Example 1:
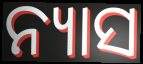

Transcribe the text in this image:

ନ୍ୟାସ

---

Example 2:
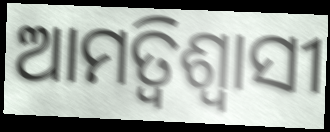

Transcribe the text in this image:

ଆମତ୍ବିଶ୍ୱାସୀ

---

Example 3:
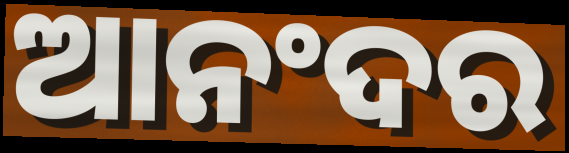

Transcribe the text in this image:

ଆନଂଦର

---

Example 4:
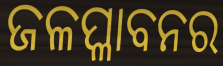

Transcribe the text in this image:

ଜଳପ୍ଳାବନର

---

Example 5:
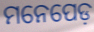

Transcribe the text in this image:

ମନେପେଡ଼